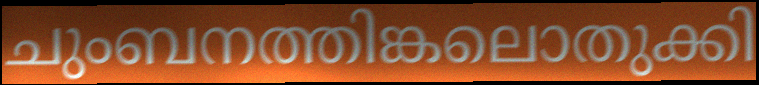
ചുംബനത്തിങ്കലൊതുക്കി